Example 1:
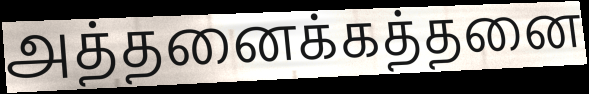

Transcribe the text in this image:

அத்தனைக்கத்தனை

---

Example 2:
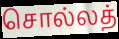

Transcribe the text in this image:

சொல்லத்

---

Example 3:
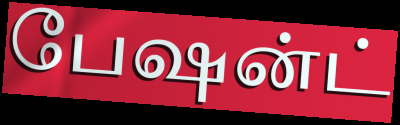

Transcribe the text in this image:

பேஷன்ட்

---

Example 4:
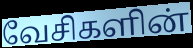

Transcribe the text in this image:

வேசிகளின்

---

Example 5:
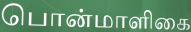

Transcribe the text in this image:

பொன்மாளிகை